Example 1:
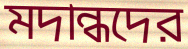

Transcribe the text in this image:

মদান্ধদের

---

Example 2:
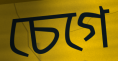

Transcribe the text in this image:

চেগে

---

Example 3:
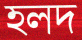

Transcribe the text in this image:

হলদ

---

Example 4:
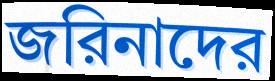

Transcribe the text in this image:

জরিনাদের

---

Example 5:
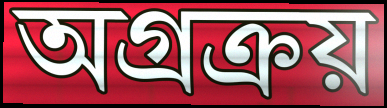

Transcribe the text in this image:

অগ্রক্রয়